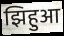
झिहुआ